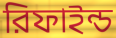
রিফাইন্ড